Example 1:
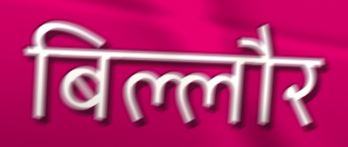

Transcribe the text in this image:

बिल्लौर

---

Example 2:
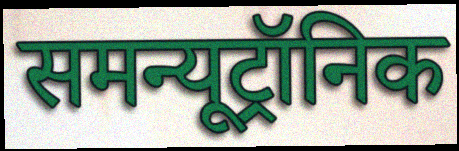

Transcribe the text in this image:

समन्यूट्रॉनिक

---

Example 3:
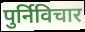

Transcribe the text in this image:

पुर्निविचार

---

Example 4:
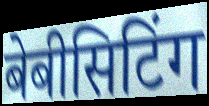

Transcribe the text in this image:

बेबीसिटिंग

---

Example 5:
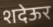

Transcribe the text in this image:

शदेऊर